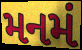
મનમં